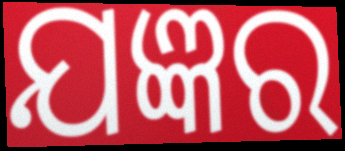
ଯଜ୍ଞର